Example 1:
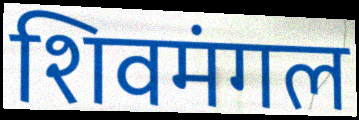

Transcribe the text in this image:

शिवमंगल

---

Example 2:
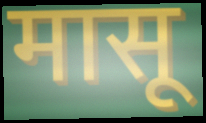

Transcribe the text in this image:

मासू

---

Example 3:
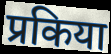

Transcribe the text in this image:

प्रकिया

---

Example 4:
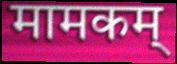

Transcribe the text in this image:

मामकम्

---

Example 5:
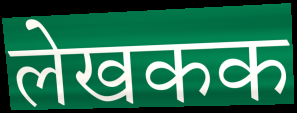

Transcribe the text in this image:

लेखकक